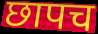
छापच